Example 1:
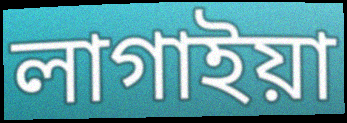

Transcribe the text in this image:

লাগাইয়া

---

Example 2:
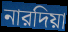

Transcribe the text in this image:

নারদিয়া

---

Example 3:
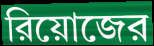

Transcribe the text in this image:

রিয়োজের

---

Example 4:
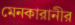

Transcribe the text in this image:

মেনকারানীর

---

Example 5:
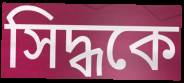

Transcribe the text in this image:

সিদ্ধকে